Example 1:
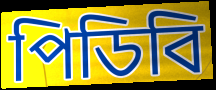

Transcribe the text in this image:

পিডিবি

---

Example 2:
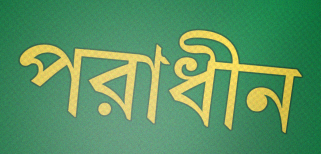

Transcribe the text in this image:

পরাধীন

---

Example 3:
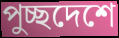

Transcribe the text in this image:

পুচ্ছদেশে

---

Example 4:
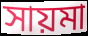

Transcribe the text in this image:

সায়মা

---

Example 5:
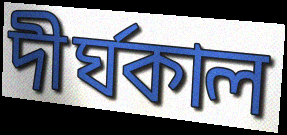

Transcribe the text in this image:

দীর্ঘকাল